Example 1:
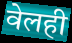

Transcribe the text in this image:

वेलही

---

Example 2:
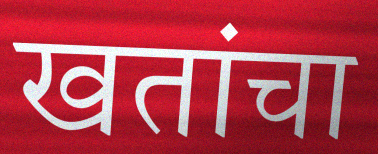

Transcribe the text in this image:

खतांचा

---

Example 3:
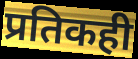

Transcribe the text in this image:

प्रतिकही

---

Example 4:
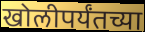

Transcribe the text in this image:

खोलीपर्यंतच्या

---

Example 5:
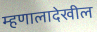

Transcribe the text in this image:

म्हणालादेखील